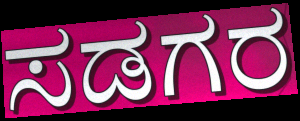
ಸಡಗರ